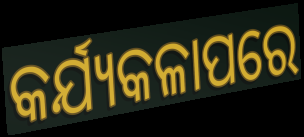
କର୍ଯ୍ୟକଳାପରେ